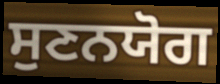
ਸੁਣਨਯੋਗ